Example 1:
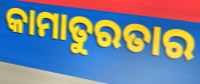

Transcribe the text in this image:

କାମାତୁରତାର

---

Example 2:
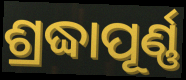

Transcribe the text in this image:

ଶ୍ରଦ୍ଧାପୂର୍ଣ୍ଣ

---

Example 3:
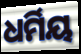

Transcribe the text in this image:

ଧର୍ମିୟ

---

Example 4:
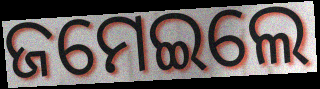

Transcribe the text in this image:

ଜମେଇଲେ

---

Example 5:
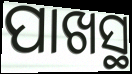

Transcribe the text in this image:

ପାଖସ୍ଥ